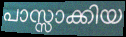
പാസ്സാക്കിയ